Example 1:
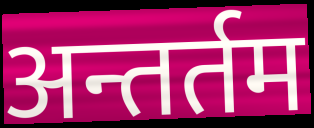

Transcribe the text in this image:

अन्तर्तम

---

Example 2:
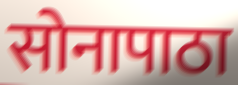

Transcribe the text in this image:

सोनापाठा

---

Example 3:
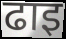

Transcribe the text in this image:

ढाइ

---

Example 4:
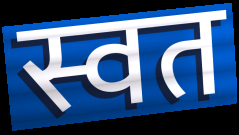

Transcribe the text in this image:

स्वत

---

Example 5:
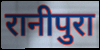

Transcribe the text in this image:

रानीपुरा